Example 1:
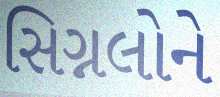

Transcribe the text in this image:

સિગ્નલોને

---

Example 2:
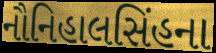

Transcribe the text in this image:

નૌનિહાલસિંહના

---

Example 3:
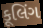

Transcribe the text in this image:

કૂલિંગ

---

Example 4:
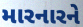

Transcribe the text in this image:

મારનારને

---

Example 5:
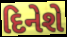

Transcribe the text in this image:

દિનેશે